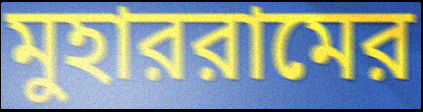
মুহাররামের